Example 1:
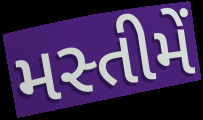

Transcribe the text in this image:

મસ્તીમેં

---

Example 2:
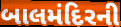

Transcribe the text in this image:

બાલમંદિરની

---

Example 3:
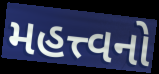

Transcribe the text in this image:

મહત્ત્વનો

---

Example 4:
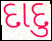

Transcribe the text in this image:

દાદુ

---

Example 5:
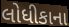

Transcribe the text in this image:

લોધીકાના